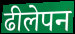
ढीलेपन